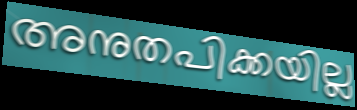
അനുതപിക്കയില്ല